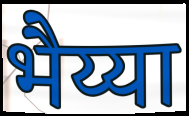
भैय्या